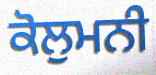
ਕੋਲੁਮਨੀ